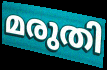
മരുതി